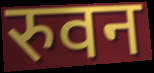
रुवन